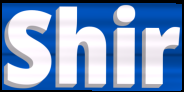
Shir